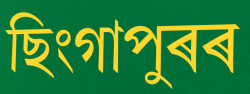
ছিংগাপুৰৰ